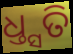
ଧ୍ତ୍ସତି